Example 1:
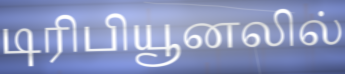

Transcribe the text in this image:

டிரிபியூனலில்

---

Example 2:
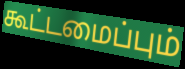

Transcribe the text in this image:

கூட்டமைப்பும்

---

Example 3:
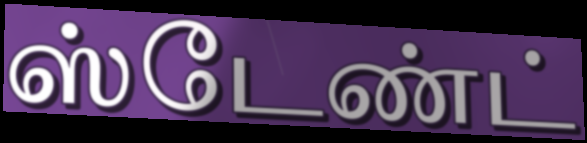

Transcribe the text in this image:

ஸ்டேண்ட்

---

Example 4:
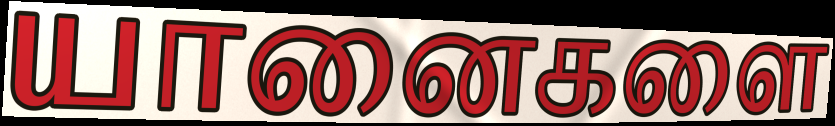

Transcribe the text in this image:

யானைகளை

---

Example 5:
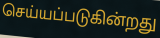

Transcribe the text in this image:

செய்யப்படுகின்றது